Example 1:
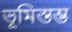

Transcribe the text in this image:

ভূমিস্তম্ভ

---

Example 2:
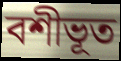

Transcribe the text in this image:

বশীভূত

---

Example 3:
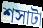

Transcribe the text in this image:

শসাটা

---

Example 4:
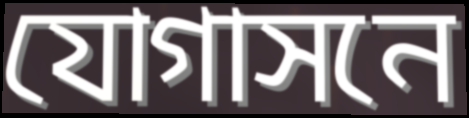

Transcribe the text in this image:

যোগাসনে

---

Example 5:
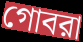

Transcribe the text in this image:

গোবরা